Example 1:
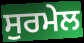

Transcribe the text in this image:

ਸੁਰਮੇਲ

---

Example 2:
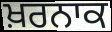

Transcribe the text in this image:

ਖ਼ਰਨਾਕ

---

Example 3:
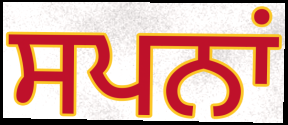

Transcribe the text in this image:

ਸਪਨਾਂ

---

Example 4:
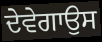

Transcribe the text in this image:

ਦੇਵੇਗਾਉਸ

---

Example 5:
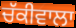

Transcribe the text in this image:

ਚੱਕੀਵਾਲਾ